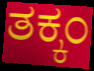
ತಕ್ಕಂ